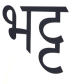
भट्ट